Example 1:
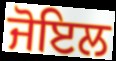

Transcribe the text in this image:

ਜੋਇਲ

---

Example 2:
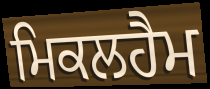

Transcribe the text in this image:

ਮਿਕਲਹੈਮ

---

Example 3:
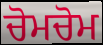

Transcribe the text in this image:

ਚੋਮਚੋਮ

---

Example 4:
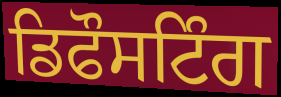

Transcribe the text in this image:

ਡਿਫੌਸਟਿੰਗ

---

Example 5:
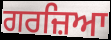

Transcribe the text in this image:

ਗਰਜ਼ਿਆ